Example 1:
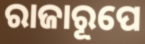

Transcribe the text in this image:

ରାଜାରୂପେ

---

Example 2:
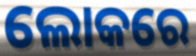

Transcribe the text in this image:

ଲୋକରେ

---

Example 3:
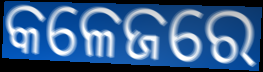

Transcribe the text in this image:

କଳେଜରେ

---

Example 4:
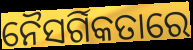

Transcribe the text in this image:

ନୈସର୍ଗିକତାରେ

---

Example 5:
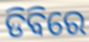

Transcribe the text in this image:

ଡିବିରେ